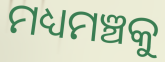
ମଧ୍ୟମଞ୍ଚକୁ